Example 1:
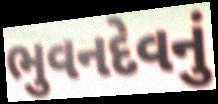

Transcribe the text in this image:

ભુવનદેવનું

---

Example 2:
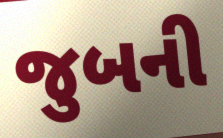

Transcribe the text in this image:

જુબની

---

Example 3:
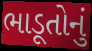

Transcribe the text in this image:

ભાડૂતોનું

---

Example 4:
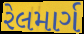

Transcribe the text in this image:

રેલમાર્ગ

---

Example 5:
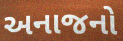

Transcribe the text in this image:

અનાજનો